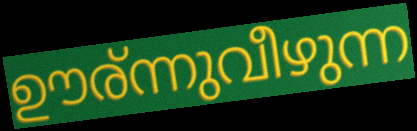
ഊര്ന്നുവീഴുന്ന